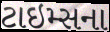
ટાઇમ્સના